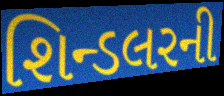
શિન્ડલરની